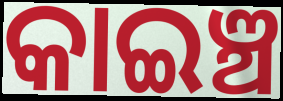
କାଇଞ୍ଚ